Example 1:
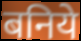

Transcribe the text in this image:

बनिये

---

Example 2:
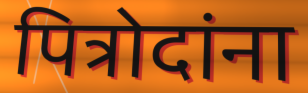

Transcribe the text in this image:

पित्रोदांना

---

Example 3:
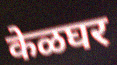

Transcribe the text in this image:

केळघर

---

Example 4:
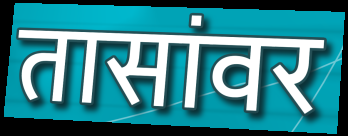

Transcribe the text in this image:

तासांवर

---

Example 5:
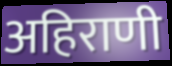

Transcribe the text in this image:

अहिराणी